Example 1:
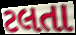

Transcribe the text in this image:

ટલતા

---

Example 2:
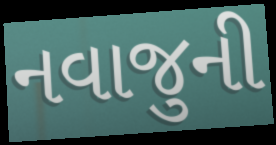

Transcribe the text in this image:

નવાજુની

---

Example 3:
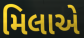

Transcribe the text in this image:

મિલાએ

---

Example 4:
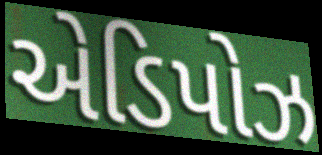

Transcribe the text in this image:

એડિપોઝ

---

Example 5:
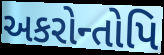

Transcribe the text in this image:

અકરોન્તોપિ